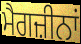
ਮੈਗਜ਼ੀਨਾਂ